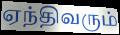
ஏந்திவரும்